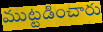
ముట్టడించారు